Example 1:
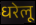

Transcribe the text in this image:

धरेलू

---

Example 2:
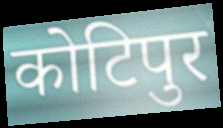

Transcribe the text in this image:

कोटिपुर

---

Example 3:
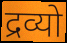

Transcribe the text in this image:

द्रव्यो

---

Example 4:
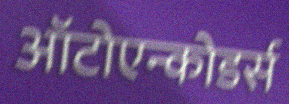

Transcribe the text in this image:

ऑटोएन्कोडर्स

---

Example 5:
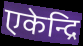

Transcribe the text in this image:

एकेन्द्रि